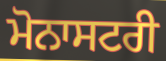
ਮੋਨਾਸਟਰੀ